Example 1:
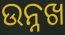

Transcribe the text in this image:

ଉନ୍ନଖ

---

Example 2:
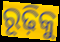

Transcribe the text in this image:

ରୂଢ଼ିକୁ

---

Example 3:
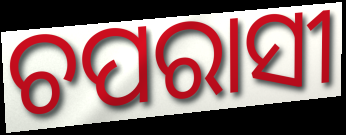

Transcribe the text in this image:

ଚପରାସୀ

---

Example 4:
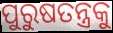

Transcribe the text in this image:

ପୁରୁଷତନ୍ତ୍ରକୁ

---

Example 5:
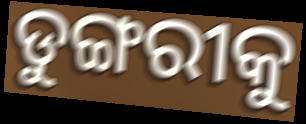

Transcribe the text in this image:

ଡୁଙ୍ଗରୀକୁ